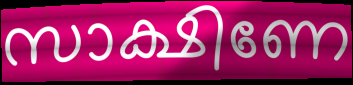
സാക്ഷിണേ